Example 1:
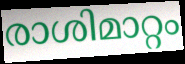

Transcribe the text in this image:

രാശിമാറ്റം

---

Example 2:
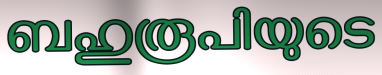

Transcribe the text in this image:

ബഹുരൂപിയുടെ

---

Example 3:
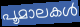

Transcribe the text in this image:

പൂമാലകൾ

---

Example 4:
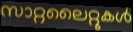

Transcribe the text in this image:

സാറ്റലൈറ്റുകൾ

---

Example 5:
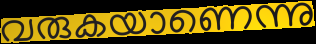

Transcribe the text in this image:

വരുകയാണെന്നു